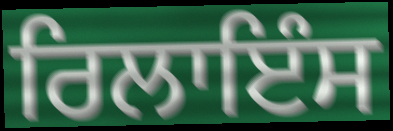
ਰਿਲਾਇੰਸ